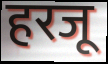
हरजू